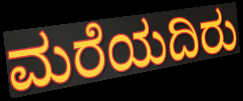
ಮರೆಯದಿರು